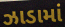
ઝાડામાં